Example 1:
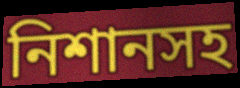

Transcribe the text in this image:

নিশানসহ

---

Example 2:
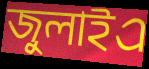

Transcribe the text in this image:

জুলাইএ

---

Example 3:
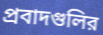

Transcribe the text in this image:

প্রবাদগুলির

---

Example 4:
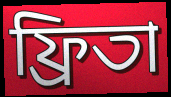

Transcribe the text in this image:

ফ্রিতা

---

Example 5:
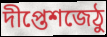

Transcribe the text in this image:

দীপ্তেশজেঠু